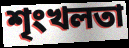
শৃংখলতা